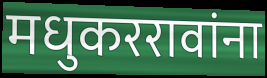
मधुकररावांना